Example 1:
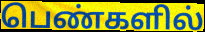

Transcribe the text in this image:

பெண்களில்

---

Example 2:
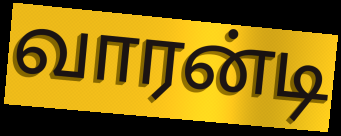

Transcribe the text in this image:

வாரன்டி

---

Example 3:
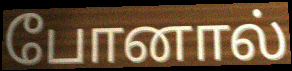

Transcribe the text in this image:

போனால்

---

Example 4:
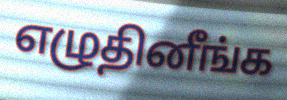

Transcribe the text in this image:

எழுதினீங்க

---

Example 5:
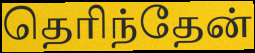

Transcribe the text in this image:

தெரிந்தேன்